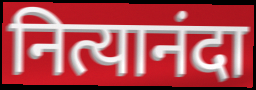
नित्यानंदा